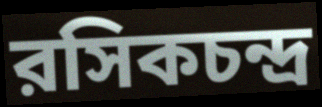
রসিকচন্দ্র